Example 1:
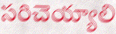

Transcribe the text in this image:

సరిచెయ్యాలి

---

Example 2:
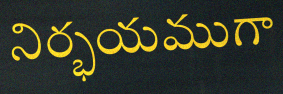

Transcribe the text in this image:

నిర్భయముగా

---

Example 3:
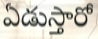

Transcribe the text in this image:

ఏడుస్తారో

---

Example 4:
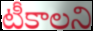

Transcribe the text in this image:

టీకాలని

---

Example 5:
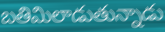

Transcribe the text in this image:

బతిమిలాడుతున్నాడు